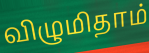
விழுமிதாம்